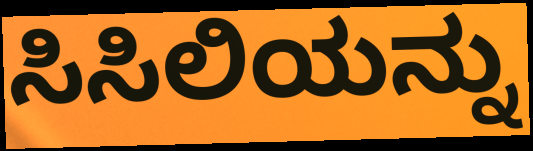
ಸಿಸಿಲಿಯನ್ನು